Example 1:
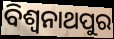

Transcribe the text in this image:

ବିଶ୍ଵନାଥପୁର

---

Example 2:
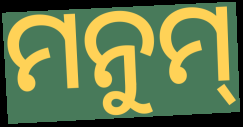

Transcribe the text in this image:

ମନୁମ୍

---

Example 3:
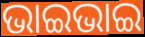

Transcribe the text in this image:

ଭାଇଭାଇ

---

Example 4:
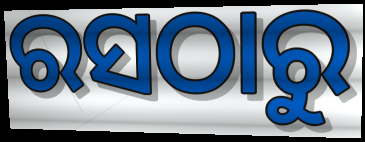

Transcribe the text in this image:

ରସଠାରୁ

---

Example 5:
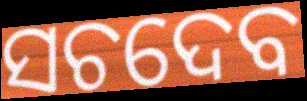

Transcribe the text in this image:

ସଚଦେବ